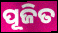
ପୂଜିତ